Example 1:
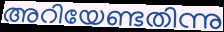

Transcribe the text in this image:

അറിയേണ്ടതിന്നു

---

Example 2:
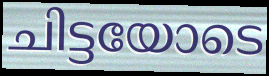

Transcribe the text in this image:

ചിട്ടയോടെ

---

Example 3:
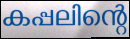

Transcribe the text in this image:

കപ്പലിന്റെ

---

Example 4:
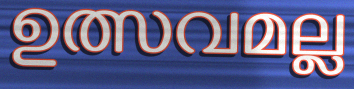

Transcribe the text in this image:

ഉത്സവമല്ല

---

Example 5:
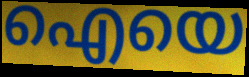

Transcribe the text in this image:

ഐയെ